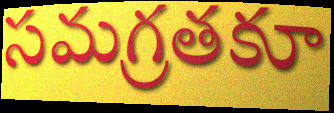
సమగ్రతకూ